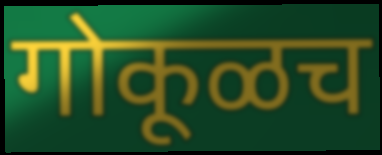
गोकूळच